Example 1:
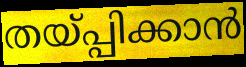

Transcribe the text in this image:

തയ്പ്പിക്കാൻ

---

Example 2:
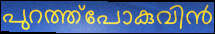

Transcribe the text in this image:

പുറത്ത്പോകുവിൻ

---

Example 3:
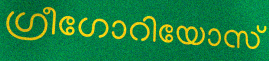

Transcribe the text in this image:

ഗ്രീഗോറിയോസ്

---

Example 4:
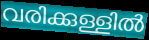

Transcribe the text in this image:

വരിക്കുള്ളിൽ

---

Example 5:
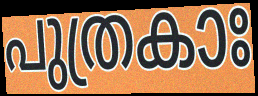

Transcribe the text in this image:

പുത്രകാഃ